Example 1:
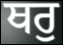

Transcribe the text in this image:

ਥਰੁ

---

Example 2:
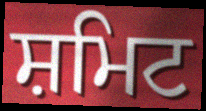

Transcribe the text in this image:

ਸ਼ਮਿਟ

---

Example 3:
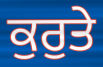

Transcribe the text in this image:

ਕੁਰੁਤੇ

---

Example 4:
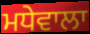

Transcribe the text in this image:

ਮਧੇਵਾਲਾ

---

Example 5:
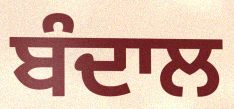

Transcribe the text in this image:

ਬੰਦਾਲ